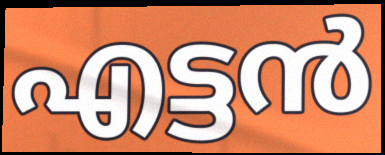
എട്ടൻ